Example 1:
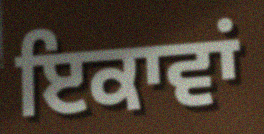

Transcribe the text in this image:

ਇਕਾਵਾਂ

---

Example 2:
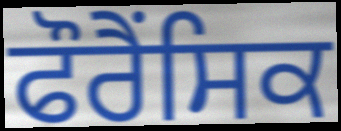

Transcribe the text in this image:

ਫੌਰੈਂਸਿਕ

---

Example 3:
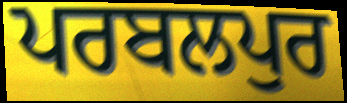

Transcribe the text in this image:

ਪਰਬਲਪੁਰ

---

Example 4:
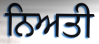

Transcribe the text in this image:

ਨਿਅਤੀ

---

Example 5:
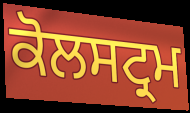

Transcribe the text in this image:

ਕੋਲਸਟ੍ਰਮ